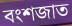
বংশজাত